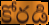
కోరడి